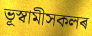
ভূস্বামীসকলৰ